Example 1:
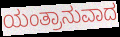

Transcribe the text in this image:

ಯಂತ್ರಾನುವಾದ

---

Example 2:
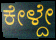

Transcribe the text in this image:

ಕೇಳ್ದೇ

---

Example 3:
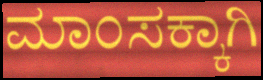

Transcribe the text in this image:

ಮಾಂಸಕ್ಕಾಗಿ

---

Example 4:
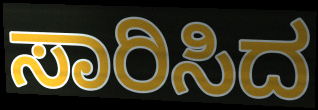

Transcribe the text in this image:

ಸಾರಿಸಿದ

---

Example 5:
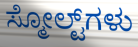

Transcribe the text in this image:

ಸ್ಮೋಲ್ಟ್‌ಗಳು